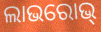
ଲାଭରୋଭ୍